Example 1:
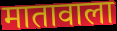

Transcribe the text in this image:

मातावाला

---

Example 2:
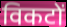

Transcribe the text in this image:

विकटों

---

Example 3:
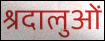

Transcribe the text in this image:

श्रदालुओं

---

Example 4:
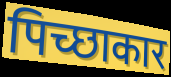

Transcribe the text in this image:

पिच्छाकार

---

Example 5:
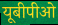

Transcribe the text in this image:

यूबीपीओ